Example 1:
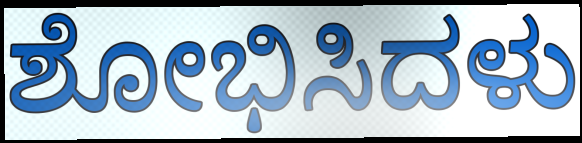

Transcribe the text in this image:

ಶೋಭಿಸಿದಳು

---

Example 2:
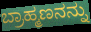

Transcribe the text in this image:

ಬ್ರಾಹ್ಮಣನನ್ನು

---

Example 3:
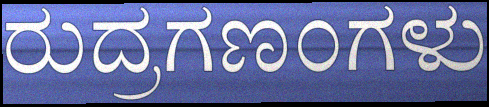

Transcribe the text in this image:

ರುದ್ರಗಣಂಗಳು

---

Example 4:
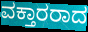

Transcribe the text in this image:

ವಕ್ತಾರರಾದ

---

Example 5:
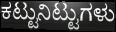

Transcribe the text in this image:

ಕಟ್ಟುನಿಟ್ಟುಗಳು